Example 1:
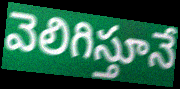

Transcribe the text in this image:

వెలిగిస్తూనే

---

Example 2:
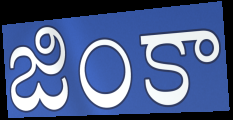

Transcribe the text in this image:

జింకా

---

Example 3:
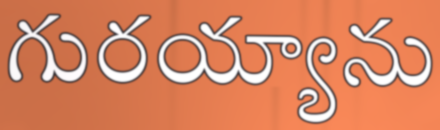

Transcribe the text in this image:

గురయ్యాను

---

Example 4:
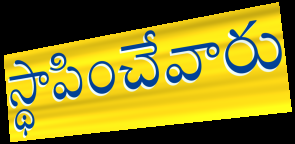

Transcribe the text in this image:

స్థాపించేవారు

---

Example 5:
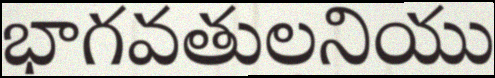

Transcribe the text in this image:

భాగవతులనియు